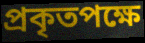
প্রকৃতপক্ষে